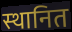
स्थानित